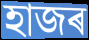
হাজৰ